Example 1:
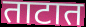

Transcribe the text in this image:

ताटात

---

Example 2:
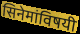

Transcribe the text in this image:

सिनेमांविषयी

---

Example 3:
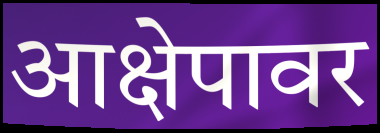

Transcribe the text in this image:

आक्षेपावर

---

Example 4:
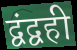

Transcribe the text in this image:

द्वंद्वही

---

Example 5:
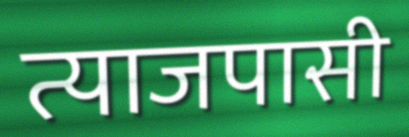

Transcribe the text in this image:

त्याजपासी